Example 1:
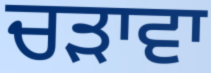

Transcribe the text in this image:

ਚੜਾਵਾ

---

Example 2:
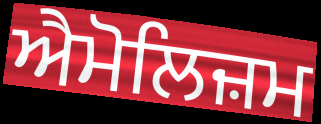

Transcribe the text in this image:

ਐਮੋਲਿਜ਼ਮ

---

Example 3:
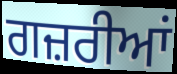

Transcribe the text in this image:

ਗਜ਼ਰੀਆਂ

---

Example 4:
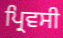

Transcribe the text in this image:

ਪ੍ਰਿਵਸੀ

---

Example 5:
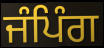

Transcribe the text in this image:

ਜੰਪਿੰਗ